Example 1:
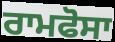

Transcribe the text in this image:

ਰਾਮਫੋਸਾ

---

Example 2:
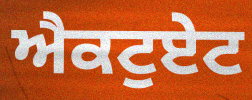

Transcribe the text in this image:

ਐਕਟੁਏਟ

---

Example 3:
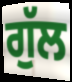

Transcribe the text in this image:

ਗੁੱਲ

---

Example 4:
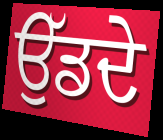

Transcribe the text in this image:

ਉੱਡਦੇ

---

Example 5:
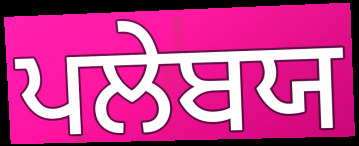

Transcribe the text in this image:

ਪਲੇਬਯ